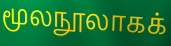
மூலநூலாகக்